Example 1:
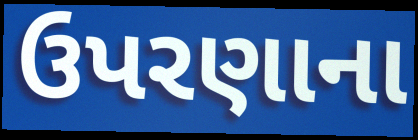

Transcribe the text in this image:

ઉપરણાના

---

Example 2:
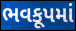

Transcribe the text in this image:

ભવકૂપમાં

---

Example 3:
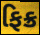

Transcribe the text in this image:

ફિક્ર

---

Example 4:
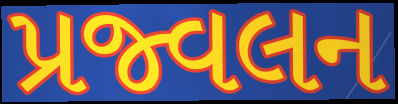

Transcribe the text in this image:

પ્રજ્વલન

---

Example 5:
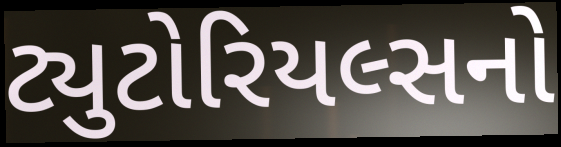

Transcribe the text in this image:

ટ્યુટોરિયલ્સનો